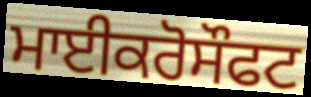
ਮਾਈਕਰੋਸੌਫਟ